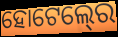
ହୋଟେଲ୍‍ରେ